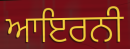
ਆਇਰਨੀ